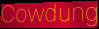
Cowdung